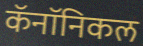
कॅनॉनिकल